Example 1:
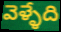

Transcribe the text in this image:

వెళ్ళేది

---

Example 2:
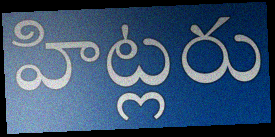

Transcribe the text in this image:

హిట్లరు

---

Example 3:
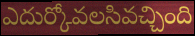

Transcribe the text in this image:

ఎదుర్కోవలసివచ్చింది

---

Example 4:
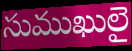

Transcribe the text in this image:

సుముఖులై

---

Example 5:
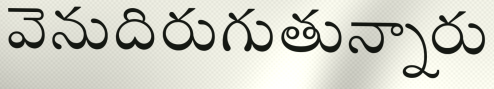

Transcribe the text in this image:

వెనుదిరుగుతున్నారు